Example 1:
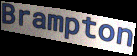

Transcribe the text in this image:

Brampton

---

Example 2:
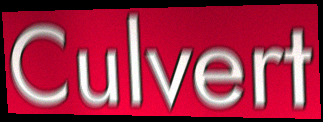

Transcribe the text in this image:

Culvert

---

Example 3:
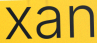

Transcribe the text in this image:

xan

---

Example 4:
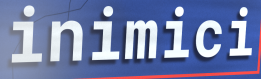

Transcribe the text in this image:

inimici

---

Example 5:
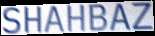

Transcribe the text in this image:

SHAHBAZ